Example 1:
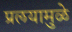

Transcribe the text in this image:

प्रलयामुळे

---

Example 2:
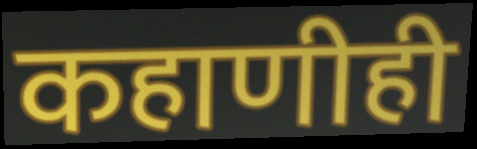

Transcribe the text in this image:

कहाणीही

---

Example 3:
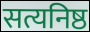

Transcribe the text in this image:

सत्यनिष्ठ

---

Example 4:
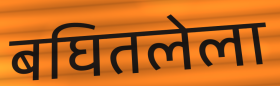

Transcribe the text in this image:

बघितलेला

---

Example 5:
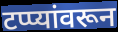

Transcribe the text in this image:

टप्प्यांवरून